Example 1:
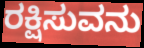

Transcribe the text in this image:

ರಕ್ಷಿಸುವನು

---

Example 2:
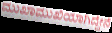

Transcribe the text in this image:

ಮುಖಾಮುಖಿಯಾಗಿದ್ದೇನೆ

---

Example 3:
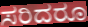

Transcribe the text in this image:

ಸರಿದರೂ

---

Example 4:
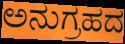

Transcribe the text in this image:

ಅನುಗ್ರಹದ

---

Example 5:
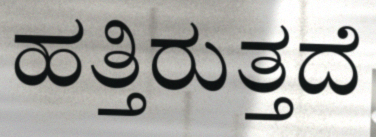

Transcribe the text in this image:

ಹತ್ತಿರುತ್ತದೆ